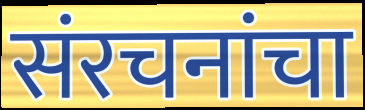
संरचनांचा